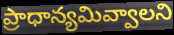
ప్రాధాన్యమివ్వాలని